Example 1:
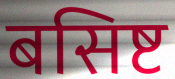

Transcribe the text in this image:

बसिष्ट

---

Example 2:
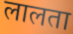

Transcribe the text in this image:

लालता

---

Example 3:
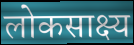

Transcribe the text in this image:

लोकसाक्ष्य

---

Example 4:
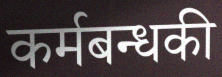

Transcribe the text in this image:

कर्मबन्धकी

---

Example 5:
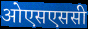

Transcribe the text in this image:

ओएसएससी